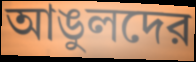
আঙুলদের